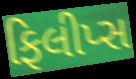
ફિલીપ્સ